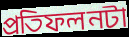
প্রতিফলনটা